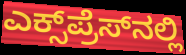
ಎಕ್ಸ್‌ಪ್ರೆಸ್‌ನಲ್ಲಿ